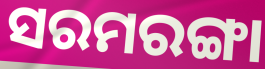
ସରମରଙ୍ଗା